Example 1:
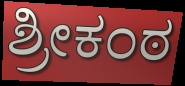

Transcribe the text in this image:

ಶ್ರೀಕಂಠ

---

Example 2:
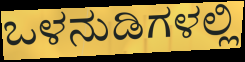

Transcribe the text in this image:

ಒಳನುಡಿಗಳಲ್ಲಿ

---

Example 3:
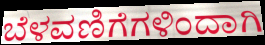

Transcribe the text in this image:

ಬೆಳವಣಿಗೆಗಳಿಂದಾಗಿ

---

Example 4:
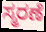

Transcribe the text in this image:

ಸ್ಮರಣೆ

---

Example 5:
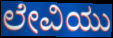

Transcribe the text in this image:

ಲೇವಿಯು